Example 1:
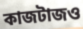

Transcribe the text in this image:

কাজটাজও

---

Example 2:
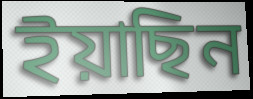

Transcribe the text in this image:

ইয়াছিন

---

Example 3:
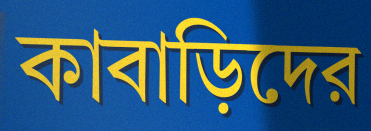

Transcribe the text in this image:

কাবাড়িদের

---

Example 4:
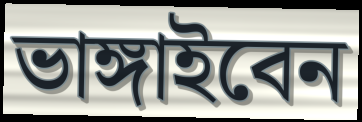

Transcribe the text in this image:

ভাঙ্গাইবেন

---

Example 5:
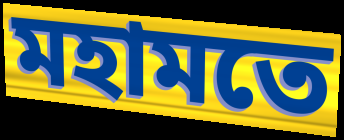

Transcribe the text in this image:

মহামতে